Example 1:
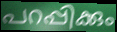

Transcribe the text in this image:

പറപ്പിക്കും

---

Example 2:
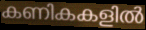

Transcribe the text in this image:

കണികകളിൽ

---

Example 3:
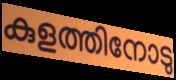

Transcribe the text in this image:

കുളത്തിനോടു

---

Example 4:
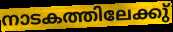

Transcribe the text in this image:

നാടകത്തിലേക്കു്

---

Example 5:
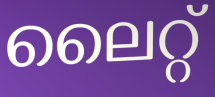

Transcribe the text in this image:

ലൈറ്റ്